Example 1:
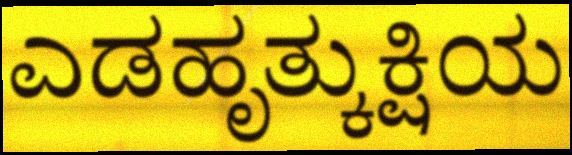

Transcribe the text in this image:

ಎಡಹೃತ್ಕುಕ್ಷಿಯ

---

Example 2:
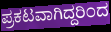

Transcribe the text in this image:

ಪ್ರಕಟವಾಗಿದ್ದರಿಂದ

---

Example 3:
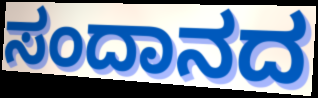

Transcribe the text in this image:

ಸಂದಾನದ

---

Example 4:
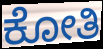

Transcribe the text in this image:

ಕೋತಿ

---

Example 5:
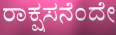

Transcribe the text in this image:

ರಾಕ್ಷಸನೆಂದೇ